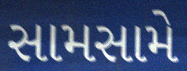
સામસામે